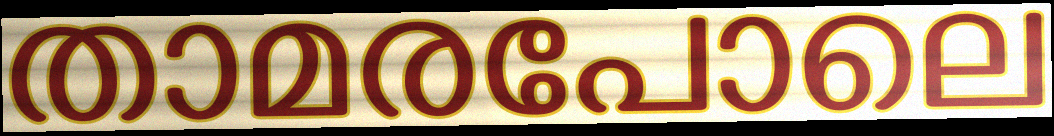
താമരപോലെ